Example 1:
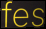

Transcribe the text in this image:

fes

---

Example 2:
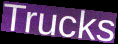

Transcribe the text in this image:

Trucks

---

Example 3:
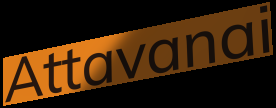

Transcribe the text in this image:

Attavanai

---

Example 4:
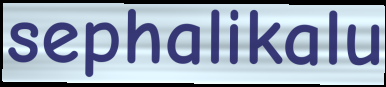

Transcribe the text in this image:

sephalikalu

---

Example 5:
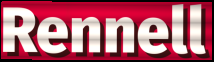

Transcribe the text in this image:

Rennell